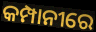
କମ୍ପାନୀରେ